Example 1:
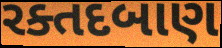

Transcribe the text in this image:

રક્તદબાણ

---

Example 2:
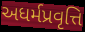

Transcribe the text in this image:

અધર્મપ્રવૃત્તિ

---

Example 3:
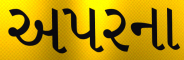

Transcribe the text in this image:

અપરના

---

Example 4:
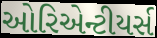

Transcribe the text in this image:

ઓરિએન્ટીયર્સ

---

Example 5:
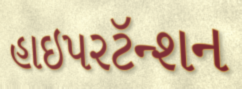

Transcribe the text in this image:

હાઇપરટૅન્શન